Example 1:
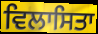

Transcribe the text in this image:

ਵਿਲਾਸਿਤਾ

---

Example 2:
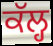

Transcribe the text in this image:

ਕੱਲ੍ਹ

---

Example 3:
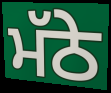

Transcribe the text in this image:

ਮੱਠੇ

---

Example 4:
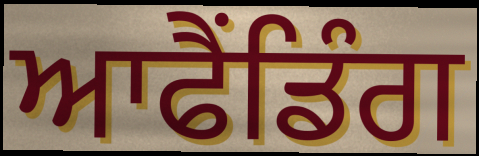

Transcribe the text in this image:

ਆਫੈਂਡਿੰਗ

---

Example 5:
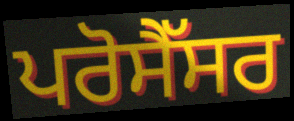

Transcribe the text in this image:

ਪਰੋਸੈੱਸਰ